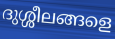
ദുശ്ശീലങ്ങളെ